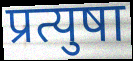
प्रत्युषा